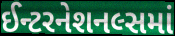
ઈન્ટરનેશનલ્સમાં